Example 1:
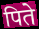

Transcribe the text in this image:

पिते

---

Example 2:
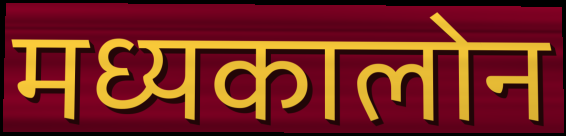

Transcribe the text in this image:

मध्यकालोन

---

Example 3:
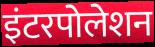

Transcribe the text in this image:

इंटरपोलेशन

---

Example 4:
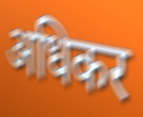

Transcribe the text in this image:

अधिकर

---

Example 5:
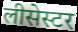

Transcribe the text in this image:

लीसेस्टर